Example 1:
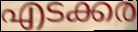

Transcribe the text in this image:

എടക്കര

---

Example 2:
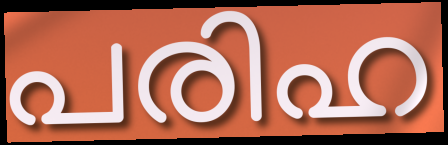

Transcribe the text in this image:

പരിഹ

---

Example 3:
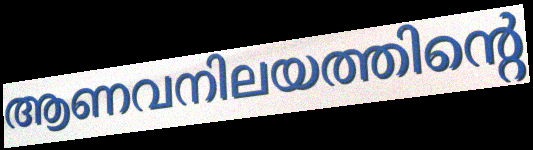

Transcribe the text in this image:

ആണവനിലയത്തിന്റെ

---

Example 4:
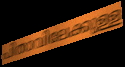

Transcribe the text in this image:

പിതാവിലേക്കുള്ള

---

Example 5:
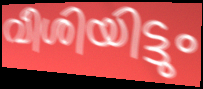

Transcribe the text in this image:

വീശിയിട്ടും